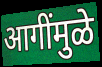
आगींमुळे